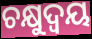
ଚକ୍ଷୁଦ୍ଵୟ